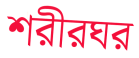
শরীরঘর